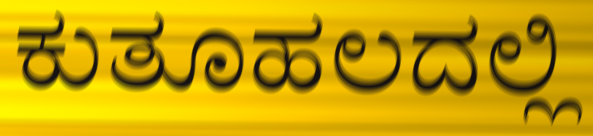
ಕುತೂಹಲದಲ್ಲಿ